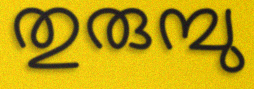
തുരുമ്പു